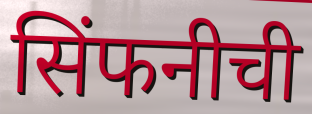
सिंफनीची